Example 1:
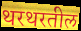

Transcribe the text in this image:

थरथरतील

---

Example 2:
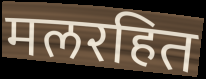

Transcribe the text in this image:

मलरहित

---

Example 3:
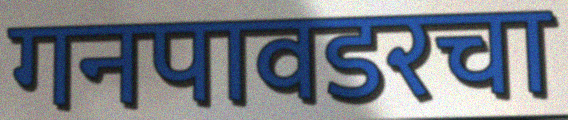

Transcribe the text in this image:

गनपावडरचा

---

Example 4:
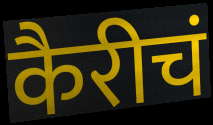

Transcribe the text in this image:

कैरीचं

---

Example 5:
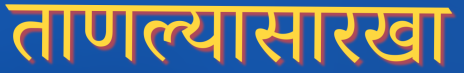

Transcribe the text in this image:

ताणल्यासारखा